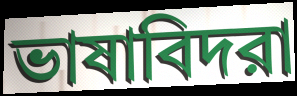
ভাষাবিদরা